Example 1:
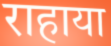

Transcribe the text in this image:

राहाया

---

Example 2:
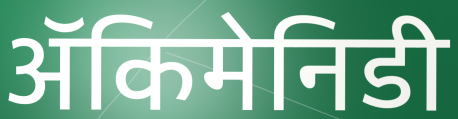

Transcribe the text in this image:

ॲकिमेनिडी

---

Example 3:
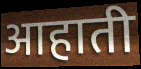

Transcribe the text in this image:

आहाती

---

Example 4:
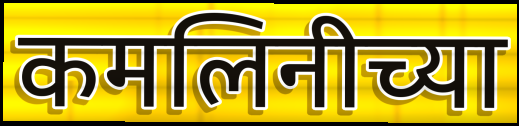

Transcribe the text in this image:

कमलिनीच्या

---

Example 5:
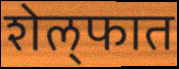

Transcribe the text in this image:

शेल्फात